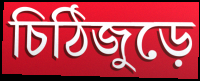
চিঠিজুড়ে